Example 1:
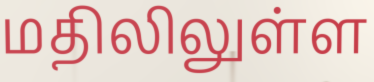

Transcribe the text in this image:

மதிலிலுள்ள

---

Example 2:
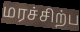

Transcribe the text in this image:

மரச்சிற்ப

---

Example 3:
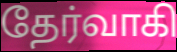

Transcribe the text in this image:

தேர்வாகி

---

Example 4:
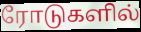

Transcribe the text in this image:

ரோடுகளில்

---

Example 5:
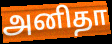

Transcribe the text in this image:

அனிதா